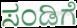
ಸಂಡಿಗೆ